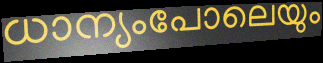
ധാന്യംപോലെയും